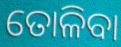
ତୋଳିବା